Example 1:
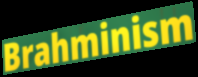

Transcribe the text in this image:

Brahminism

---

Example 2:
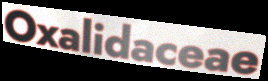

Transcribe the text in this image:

Oxalidaceae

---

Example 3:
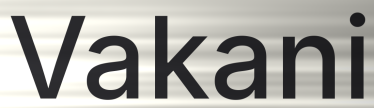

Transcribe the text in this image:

Vakani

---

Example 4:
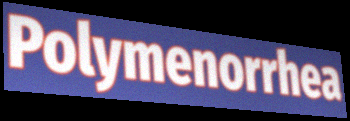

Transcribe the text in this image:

Polymenorrhea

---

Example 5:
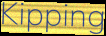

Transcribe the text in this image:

Kipping